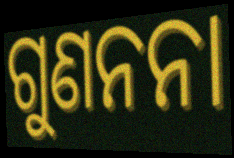
ଗୁଣନନା